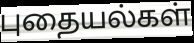
புதையல்கள்